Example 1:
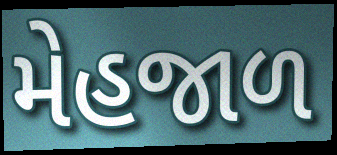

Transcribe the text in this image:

મેહજાળ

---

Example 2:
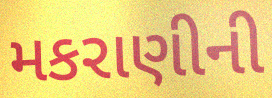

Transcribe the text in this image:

મકરાણીની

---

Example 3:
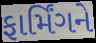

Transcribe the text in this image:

ફાર્મિંગને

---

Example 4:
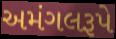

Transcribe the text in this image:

અમંગલરૂપે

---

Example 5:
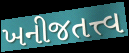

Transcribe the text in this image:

ખનીજતત્ત્વ